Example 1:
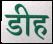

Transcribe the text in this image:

डीह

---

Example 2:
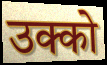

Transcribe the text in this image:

उक्को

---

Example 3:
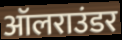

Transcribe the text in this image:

ऑलराउंडर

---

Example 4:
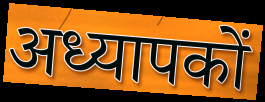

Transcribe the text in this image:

अध्यापकों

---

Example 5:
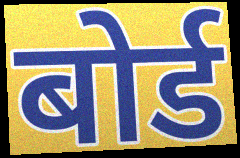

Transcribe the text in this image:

बोर्ड